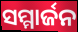
ସମ୍ମାର୍ଜନ